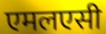
एमलएसी